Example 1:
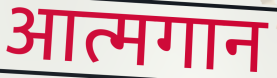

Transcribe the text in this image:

आत्मगान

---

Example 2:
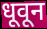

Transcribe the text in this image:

धूवून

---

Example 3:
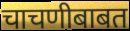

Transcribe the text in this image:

चाचणीबाबत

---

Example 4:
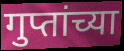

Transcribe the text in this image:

गुप्तांच्या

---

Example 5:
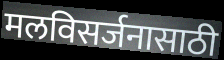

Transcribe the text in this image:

मलविसर्जनासाठी